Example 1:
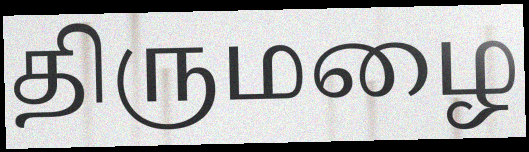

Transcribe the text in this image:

திருமழை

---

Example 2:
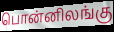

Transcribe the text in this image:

பொன்னிலங்கு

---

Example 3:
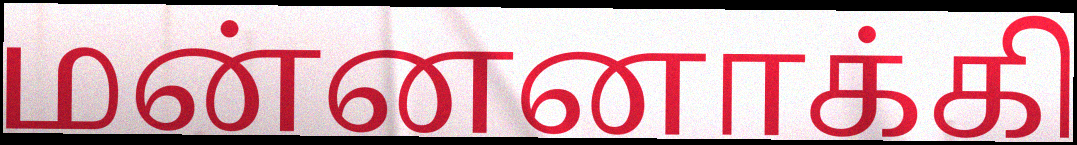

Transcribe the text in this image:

மன்னனாக்கி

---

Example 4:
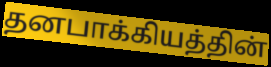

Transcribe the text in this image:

தனபாக்கியத்தின்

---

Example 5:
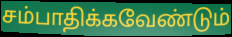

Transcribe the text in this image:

சம்பாதிக்கவேண்டும்